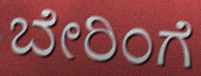
ಬೇರಿಂಗೆ